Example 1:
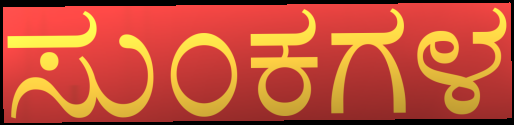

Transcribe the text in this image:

ಸುಂಕಗಳ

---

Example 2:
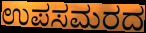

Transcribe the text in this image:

ಉಪಸಮರದ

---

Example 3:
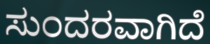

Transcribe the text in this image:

ಸುಂದರವಾಗಿದೆ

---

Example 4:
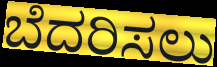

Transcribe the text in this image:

ಬೆದರಿಸಲು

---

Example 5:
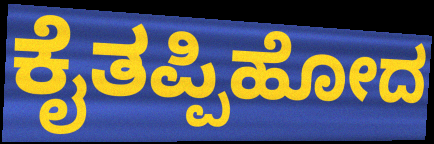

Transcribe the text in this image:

ಕೈತಪ್ಪಿಹೋದ